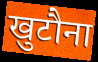
खुटौना